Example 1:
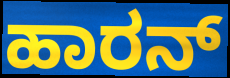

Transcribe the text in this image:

ಹಾರನ್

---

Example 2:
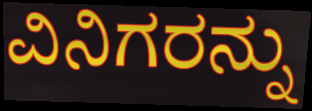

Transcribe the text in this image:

ವಿನಿಗರನ್ನು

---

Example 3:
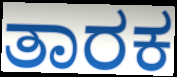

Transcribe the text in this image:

ತಾರಕ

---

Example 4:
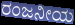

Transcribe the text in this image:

ರಂಜನೀಯ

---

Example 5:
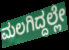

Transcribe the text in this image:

ಮಲಗಿದ್ದಲ್ಲೇ